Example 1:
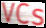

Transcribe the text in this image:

VCs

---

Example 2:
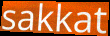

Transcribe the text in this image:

sakkat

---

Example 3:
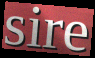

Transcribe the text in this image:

sire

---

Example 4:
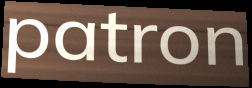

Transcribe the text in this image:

patron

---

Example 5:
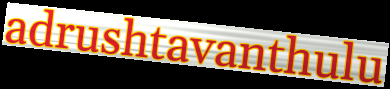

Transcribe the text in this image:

adrushtavanthulu